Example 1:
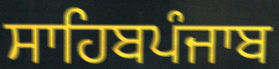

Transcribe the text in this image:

ਸਾਹਿਬਪੰਜਾਬ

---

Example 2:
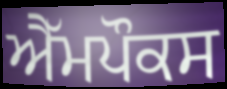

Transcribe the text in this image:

ਐੱਮਪੌਕਸ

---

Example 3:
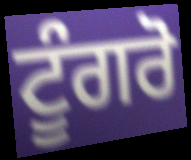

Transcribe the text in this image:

ਟੂੰਗਰੋ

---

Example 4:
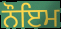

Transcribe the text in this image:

ਨੌਇਮ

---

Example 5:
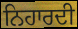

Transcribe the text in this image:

ਨਿਹਾਰਦੀ